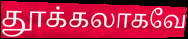
தூக்கலாகவே